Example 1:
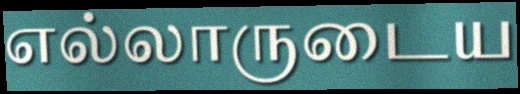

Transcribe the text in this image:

எல்லாருடைய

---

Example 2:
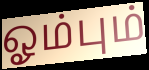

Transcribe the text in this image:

ஓம்பும்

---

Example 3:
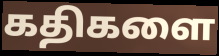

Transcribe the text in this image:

கதிகளை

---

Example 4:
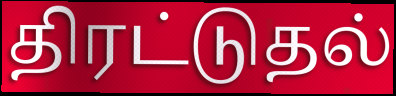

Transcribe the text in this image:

திரட்டுதல்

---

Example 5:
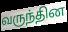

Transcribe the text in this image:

வருந்தின